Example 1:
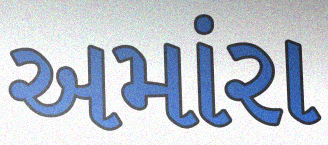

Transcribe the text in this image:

અમાંરા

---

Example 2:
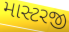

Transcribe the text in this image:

માસ્ટરજી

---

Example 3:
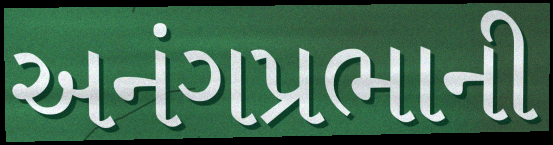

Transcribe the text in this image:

અનંગપ્રભાની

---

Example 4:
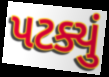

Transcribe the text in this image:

પટક્યું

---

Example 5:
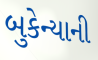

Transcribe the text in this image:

બુકેન્યાની